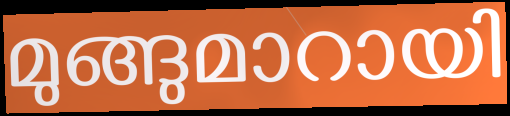
മുങ്ങുമാറായി